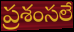
ప్రశంసలే